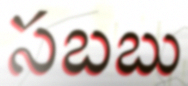
సబబు